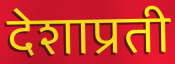
देशाप्रती